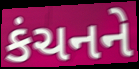
કંચનને